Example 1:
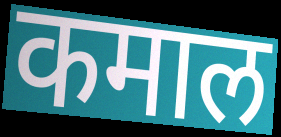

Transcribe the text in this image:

कमाल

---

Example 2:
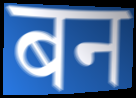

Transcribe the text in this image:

बन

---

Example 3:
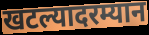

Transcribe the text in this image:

खटल्यादरम्यान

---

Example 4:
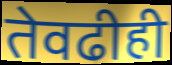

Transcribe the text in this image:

तेवढीही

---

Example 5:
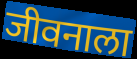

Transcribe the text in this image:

जीवनाला